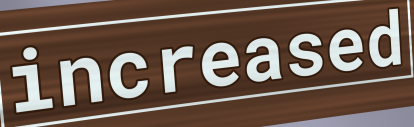
increased